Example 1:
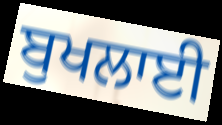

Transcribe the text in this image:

ਬੁਖਲਾਈ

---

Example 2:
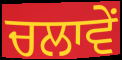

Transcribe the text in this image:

ਚਲਾਵੇਂ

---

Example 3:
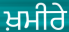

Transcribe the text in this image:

ਖ਼ਮੀਰੇ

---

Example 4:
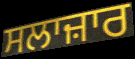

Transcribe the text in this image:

ਸਲਾਜ਼ਾਰ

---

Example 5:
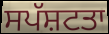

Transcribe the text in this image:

ਸਪੱਸ਼ਟਤਾ